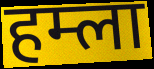
हम्ला